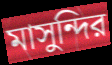
মাসুন্দির